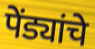
पेंड्यांचे